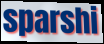
sparshi